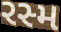
રસ્મ